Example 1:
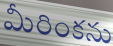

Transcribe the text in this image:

మీరింకను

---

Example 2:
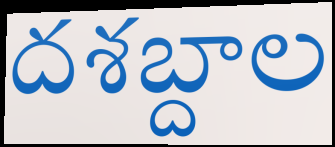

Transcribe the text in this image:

దశబ్దాల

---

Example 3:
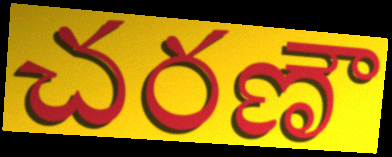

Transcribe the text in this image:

చరణౌ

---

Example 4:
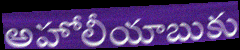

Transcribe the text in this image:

అహోలీయాబుకు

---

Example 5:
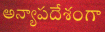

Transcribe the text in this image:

అన్యాపదేశంగా